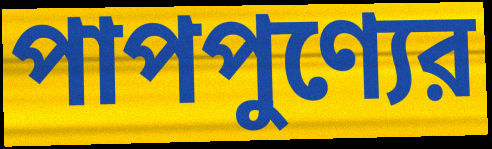
পাপপুণ্যের